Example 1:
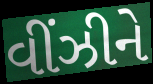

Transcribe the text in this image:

વીંઝીને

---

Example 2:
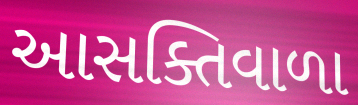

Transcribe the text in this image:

આસક્તિવાળા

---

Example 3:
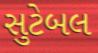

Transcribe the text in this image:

સુટેબલ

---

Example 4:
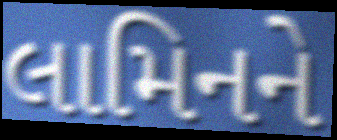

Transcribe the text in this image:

લામિનને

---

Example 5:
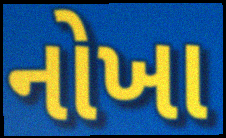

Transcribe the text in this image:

નોખા